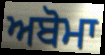
ਅਬੋਮਾ